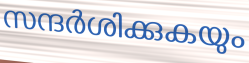
സന്ദർശിക്കുകയും